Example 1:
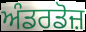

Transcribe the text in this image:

ਅੰਡਰਡੋਜ਼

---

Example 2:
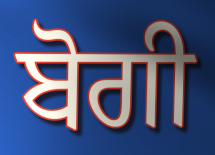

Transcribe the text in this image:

ਬੋਗੀ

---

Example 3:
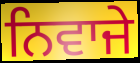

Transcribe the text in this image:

ਨਿਵਾਜੇ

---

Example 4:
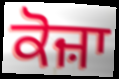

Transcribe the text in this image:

ਕੋਜ਼ਾ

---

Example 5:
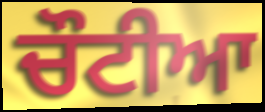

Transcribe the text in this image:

ਚੌਟੀਆ